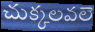
చుక్కలవలె